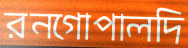
রনগোপালদি